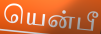
யென்பீ